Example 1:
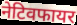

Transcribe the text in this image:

नेटिवफायर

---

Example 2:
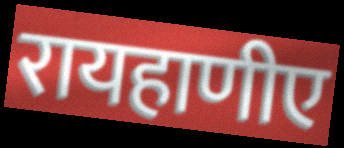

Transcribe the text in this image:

रायहाणीए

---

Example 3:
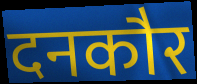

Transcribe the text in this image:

दनकौर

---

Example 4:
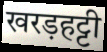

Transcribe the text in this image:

खरड़हट्टी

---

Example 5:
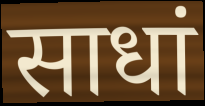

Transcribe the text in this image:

साधां